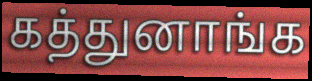
கத்துனாங்க